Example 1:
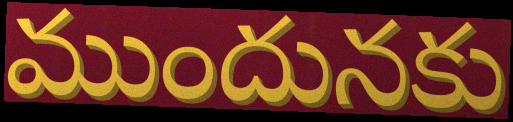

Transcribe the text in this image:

ముందునకు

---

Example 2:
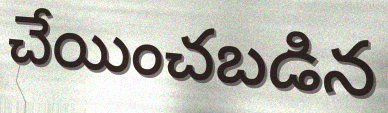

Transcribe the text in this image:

చేయించబడిన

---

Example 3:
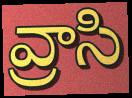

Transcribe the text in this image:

వ్రాసి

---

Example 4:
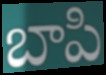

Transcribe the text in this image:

బాపి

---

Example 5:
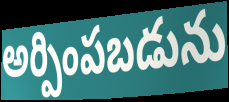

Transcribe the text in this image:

అర్పింపబడును